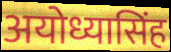
अयोध्यासिंह